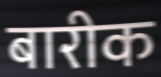
बारीक